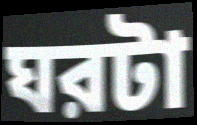
ঘরটা